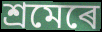
শ্ৰমেৰে